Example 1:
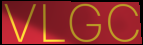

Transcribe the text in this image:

VLGC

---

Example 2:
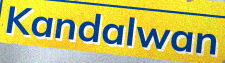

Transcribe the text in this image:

Kandalwan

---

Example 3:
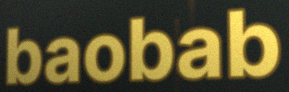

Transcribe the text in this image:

baobab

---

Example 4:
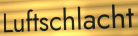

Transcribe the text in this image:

Luftschlacht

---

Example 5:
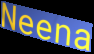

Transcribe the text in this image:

Neena